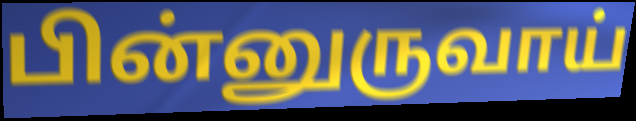
பின்னுருவாய்